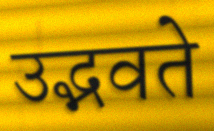
उद्भवते